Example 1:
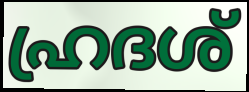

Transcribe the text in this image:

ഹ്രദശ്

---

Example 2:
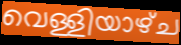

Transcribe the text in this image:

വെള്ളിയാഴ്‌ച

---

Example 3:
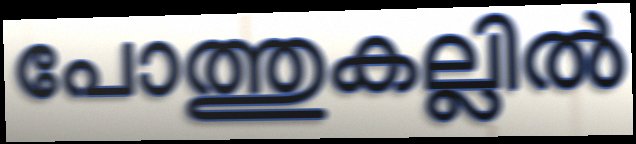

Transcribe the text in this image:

പോത്തുകല്ലിൽ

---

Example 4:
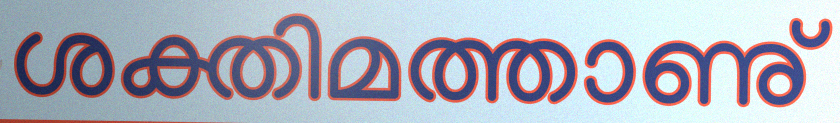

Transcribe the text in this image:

ശക്തിമത്താണു്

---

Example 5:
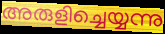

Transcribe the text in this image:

അരുളിച്ചെയ്യന്നു